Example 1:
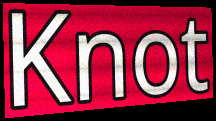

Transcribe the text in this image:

Knot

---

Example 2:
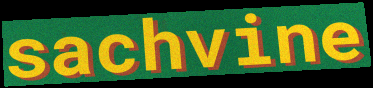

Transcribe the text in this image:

sachvine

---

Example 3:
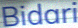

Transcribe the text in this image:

Bidari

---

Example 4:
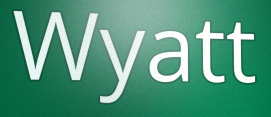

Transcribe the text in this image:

Wyatt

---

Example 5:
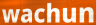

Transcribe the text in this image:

wachun